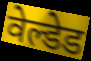
वेल्डेड